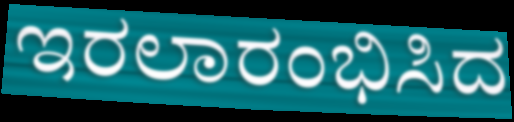
ಇರಲಾರಂಭಿಸಿದ